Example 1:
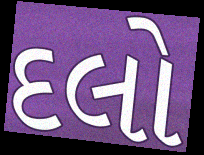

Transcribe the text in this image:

દલો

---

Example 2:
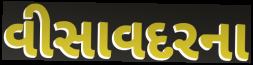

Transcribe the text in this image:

વીસાવદરના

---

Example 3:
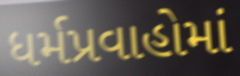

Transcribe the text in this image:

ધર્મપ્રવાહોમાં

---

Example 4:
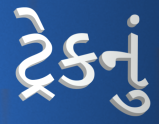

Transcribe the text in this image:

ટ્રેકનું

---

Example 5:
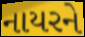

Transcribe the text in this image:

નાયરને